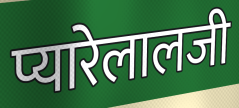
प्यारेलालजी